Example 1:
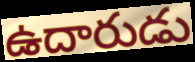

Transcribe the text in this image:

ఉదారుడు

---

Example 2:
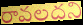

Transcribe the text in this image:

రావలదని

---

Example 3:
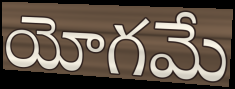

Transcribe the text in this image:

యోగమే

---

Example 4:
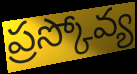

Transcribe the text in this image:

ప్రస్కోవ్య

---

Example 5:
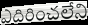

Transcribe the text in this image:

ఎదిరించలేని